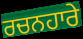
ਰਚਨਹਾਰੇ